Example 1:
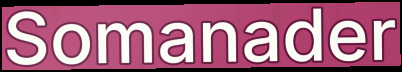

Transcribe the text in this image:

Somanader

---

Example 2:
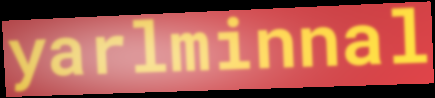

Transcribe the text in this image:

yarlminnal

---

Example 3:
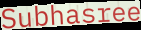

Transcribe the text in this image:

Subhasree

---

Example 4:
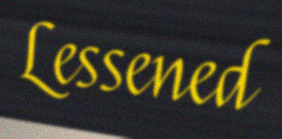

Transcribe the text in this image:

Lessened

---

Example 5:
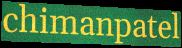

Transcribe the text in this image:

chimanpatel